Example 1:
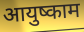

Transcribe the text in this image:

आयुष्काम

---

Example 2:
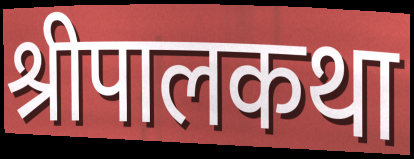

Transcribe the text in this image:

श्रीपालकथा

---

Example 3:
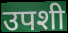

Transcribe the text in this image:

उपशी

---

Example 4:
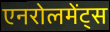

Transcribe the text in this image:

एनरोलमेंट्स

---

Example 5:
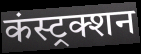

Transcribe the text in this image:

कंस्‍ट्रक्‍शन